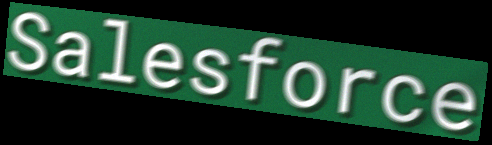
Salesforce